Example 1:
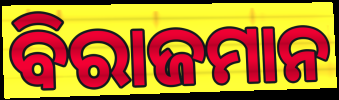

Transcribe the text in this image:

ବିରାଜମାନ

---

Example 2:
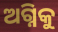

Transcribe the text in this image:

ଅଗ୍ନିକୁ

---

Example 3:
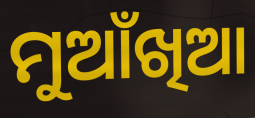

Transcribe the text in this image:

ମୁଆଁଖିଆ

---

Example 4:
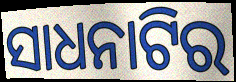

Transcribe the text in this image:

ସାଧନାଟିର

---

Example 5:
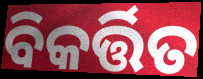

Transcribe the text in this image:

ବିକର୍ତ୍ତିତ